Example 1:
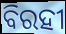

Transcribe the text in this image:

ବିରହୀ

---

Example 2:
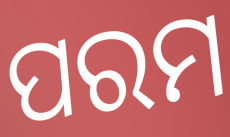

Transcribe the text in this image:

ପରମ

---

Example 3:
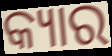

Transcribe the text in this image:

କ୍ୟାର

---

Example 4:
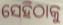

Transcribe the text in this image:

ସେହିଠାକୁ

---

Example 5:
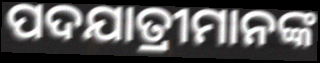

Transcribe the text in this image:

ପଦଯାତ୍ରୀମାନଙ୍କ